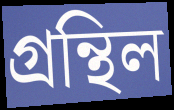
গ্ৰন্থিল